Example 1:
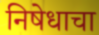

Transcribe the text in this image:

निषेधाचा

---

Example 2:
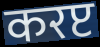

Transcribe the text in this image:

करप्ट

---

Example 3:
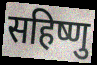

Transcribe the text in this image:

सहिष्णु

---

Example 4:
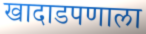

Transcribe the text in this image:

खादाडपणाला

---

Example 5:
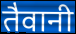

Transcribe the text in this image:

तैवानी